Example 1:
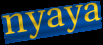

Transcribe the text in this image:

nyaya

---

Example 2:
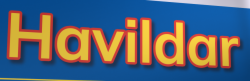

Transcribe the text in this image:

Havildar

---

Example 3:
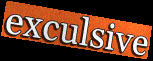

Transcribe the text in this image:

exculsive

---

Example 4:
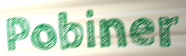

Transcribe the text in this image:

Pobiner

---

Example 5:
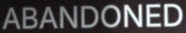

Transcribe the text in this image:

ABANDONED